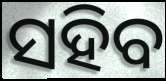
ସହିବ